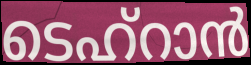
ടെഹ്റാൻ